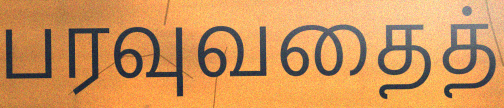
பரவுவதைத்